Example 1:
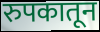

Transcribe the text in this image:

रुपकातून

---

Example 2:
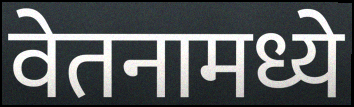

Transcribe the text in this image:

वेतनामध्ये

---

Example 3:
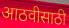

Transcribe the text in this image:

आठवीसाठी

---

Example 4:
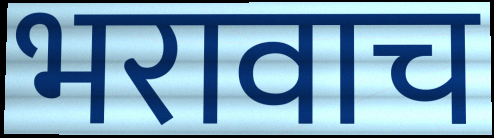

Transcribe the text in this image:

भरावाच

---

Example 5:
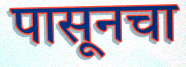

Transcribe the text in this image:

पासूनचा